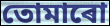
তোমাৰো